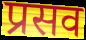
प्रसव